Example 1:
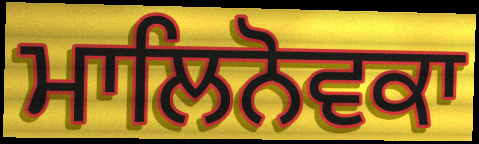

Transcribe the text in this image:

ਮਾਲਿਨੋਵਕਾ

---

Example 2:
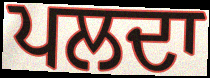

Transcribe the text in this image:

ਪਲਦਾ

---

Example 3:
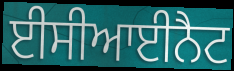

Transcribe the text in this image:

ਈਸੀਆਈਨੈਟ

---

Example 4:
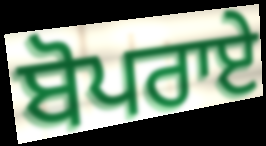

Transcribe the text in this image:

ਬੋਪਰਾਏ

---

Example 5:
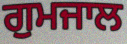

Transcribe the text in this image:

ਗੁਮਜਾਲ